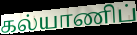
கல்யாணிப்